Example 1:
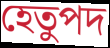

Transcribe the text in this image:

হেতুপদ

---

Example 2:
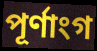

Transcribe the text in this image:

পূৰ্ণাংগ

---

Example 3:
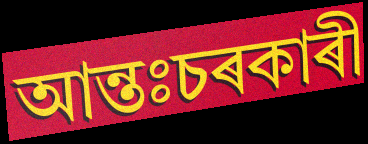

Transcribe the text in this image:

আন্তঃচৰকাৰী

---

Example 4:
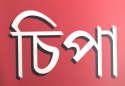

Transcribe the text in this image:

চিপা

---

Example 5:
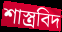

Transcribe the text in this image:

শাস্ত্ৰবিদ